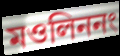
মওলিননং